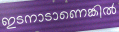
ഇടനാടാണെങ്കിൽ